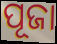
ପୂଜା